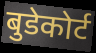
बुडेकोर्ट